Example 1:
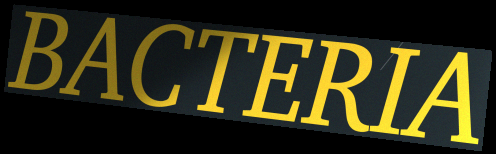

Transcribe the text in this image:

BACTERIA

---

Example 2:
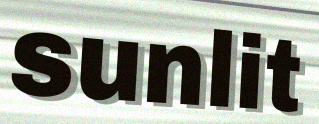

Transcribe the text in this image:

sunlit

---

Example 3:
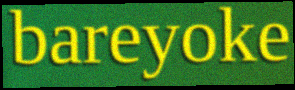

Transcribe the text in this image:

bareyoke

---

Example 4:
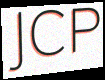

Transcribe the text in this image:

JCP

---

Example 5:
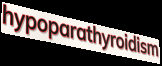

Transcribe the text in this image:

hypoparathyroidism